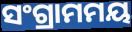
ସଂଗ୍ରାମମୟ